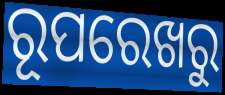
ରୂପରେଖରୁ